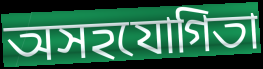
অসহযোগিতা